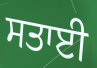
ਸਤਾਈ